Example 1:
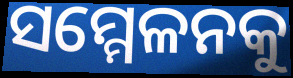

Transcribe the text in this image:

ସମ୍ମେଳନକୁ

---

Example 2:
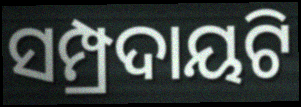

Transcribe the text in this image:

ସମ୍ପ୍ରଦାୟଟି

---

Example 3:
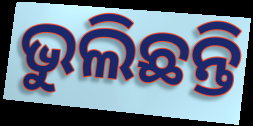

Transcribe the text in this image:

ଭୁଲିଛନ୍ତି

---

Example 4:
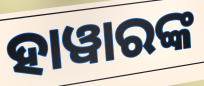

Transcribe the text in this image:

ହାୱାରଙ୍କ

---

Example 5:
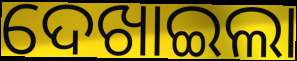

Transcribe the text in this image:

ଦେଖାଇଲା